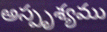
అస్పృశ్యము